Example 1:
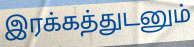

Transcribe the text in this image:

இரக்கத்துடனும்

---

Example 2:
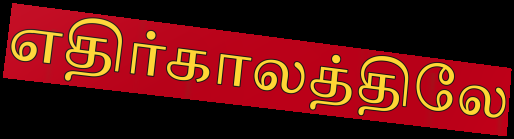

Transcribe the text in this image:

எதிர்காலத்திலே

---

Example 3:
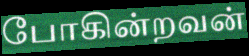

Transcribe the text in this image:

போகின்றவன்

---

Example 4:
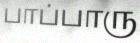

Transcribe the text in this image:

பாப்பாரு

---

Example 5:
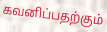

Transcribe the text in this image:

கவனிப்பதற்கும்